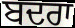
ਬਦਰਾ